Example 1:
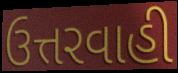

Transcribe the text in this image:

ઉત્તરવાહી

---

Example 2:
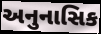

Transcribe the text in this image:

અનુનાસિક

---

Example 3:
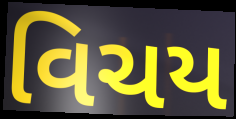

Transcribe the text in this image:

વિચય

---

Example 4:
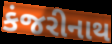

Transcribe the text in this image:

કંજરીનાથ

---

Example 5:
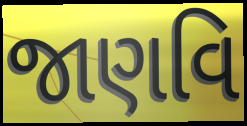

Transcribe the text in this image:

જાણવિ